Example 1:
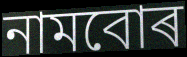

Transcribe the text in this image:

নামবোৰ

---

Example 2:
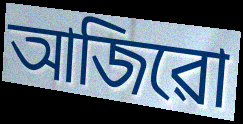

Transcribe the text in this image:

আজিৱো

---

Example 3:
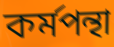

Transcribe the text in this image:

কৰ্মপন্থা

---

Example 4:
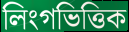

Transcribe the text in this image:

লিংগভিত্তিক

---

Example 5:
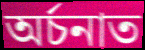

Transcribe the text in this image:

অৰ্চনাত